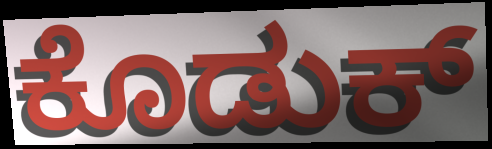
ಕೊಡುಕ್